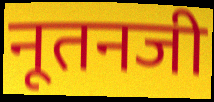
नूतनजी